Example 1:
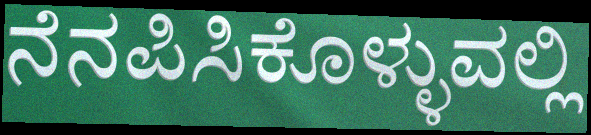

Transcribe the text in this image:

ನೆನಪಿಸಿಕೊಳ್ಳುವಲ್ಲಿ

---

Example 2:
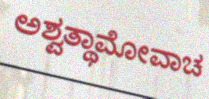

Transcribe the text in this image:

ಅಶ್ವತ್ಥಾಮೋವಾಚ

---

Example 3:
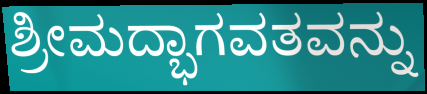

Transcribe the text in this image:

ಶ್ರೀಮದ್ಭಾಗವತವನ್ನು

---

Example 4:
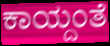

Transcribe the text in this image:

ಕಾಯ್ದಂತೆ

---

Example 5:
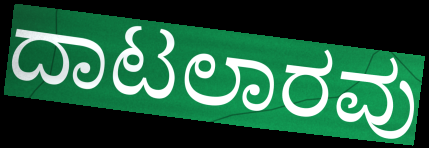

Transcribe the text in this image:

ದಾಟಲಾರವು